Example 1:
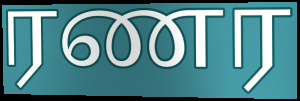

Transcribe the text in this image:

ரணர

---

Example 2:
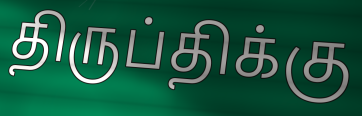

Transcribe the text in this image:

திருப்திக்கு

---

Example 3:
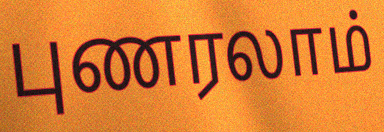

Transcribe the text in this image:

புணரலாம்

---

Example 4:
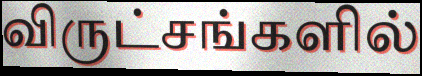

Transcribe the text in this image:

விருட்சங்களில்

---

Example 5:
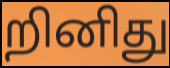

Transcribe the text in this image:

றினிது